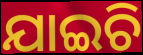
ଯାଇଚି